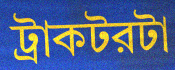
ট্রাকটরটা